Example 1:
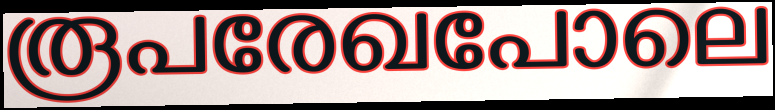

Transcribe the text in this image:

രൂപരേഖപോലെ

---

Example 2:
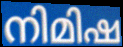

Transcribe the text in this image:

നിമിഷ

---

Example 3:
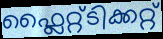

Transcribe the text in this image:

ഫ്ലൈറ്റ്ടിക്കറ്റ്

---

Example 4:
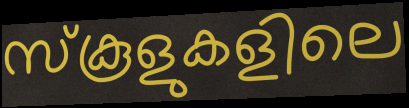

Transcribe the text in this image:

സ്കൂളുകളിലെ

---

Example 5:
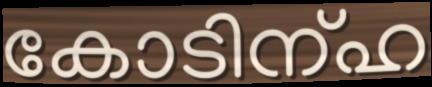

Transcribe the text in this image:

കോടിന്ഹ